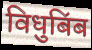
विधुबिंब